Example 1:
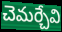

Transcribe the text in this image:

చెమర్చేవి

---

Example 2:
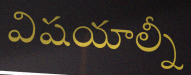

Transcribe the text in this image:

విషయాల్నీ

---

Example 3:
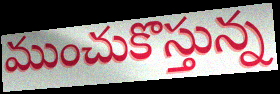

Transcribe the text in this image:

ముంచుకొస్తున్న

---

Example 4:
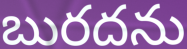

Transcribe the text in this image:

బురదను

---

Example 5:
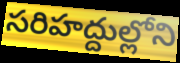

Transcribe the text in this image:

సరిహద్దుల్లోని